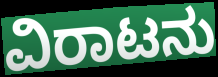
ವಿರಾಟನು